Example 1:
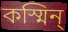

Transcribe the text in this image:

কস্মিন্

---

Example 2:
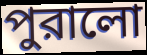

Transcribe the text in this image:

পুরালো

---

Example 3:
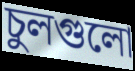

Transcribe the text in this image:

চুলগুলো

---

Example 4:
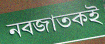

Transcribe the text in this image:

নবজাতকই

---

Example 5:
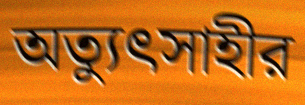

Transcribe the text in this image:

অত্যুৎসাহীর